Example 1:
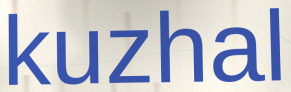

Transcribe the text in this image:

kuzhal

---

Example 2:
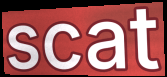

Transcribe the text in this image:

scat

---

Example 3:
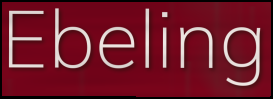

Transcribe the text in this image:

Ebeling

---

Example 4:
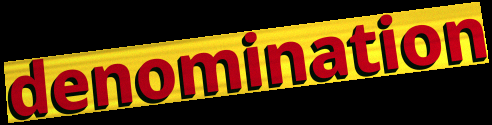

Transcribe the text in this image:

denomination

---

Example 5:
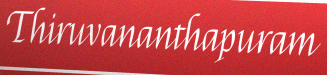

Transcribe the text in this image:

Thiruvananthapuram